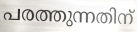
പരത്തുന്നതിന്